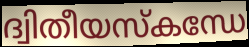
ദ്വിതീയസ്കന്ധേ